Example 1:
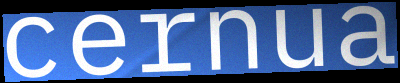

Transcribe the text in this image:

cernua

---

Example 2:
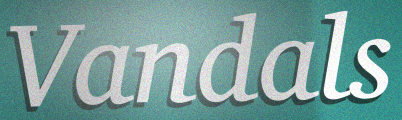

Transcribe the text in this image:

Vandals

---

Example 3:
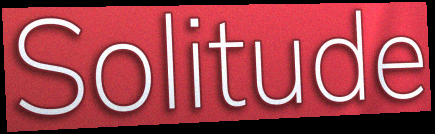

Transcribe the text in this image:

Solitude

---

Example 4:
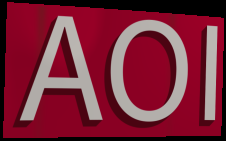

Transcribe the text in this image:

AOI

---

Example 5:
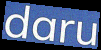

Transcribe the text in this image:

daru